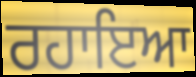
ਰਹਾਇਆ